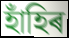
হাঁহিৰ